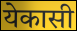
येकासी